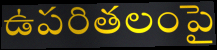
ఉపరితలంపై